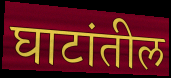
घाटांतील